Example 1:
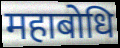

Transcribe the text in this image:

महाबोधि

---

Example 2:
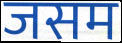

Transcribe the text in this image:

जसम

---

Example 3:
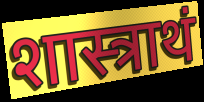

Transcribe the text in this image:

शास्त्राथं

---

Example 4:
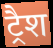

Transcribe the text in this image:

ट्रैश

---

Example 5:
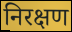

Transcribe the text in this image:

निरक्षण